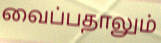
வைப்பதாலும்